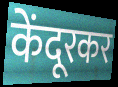
केंदूरकर